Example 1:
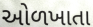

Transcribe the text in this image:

ઓળખાતા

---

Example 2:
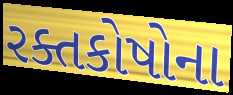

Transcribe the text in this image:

રક્તકોષોના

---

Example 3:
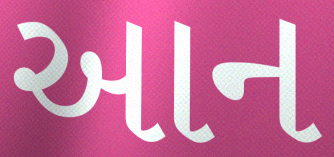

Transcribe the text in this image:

આન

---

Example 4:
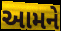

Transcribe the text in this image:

આમને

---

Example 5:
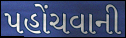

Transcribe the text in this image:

પહોંચવાની